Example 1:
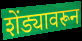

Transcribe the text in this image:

शेंड्यावरून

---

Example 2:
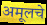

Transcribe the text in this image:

अमूलचे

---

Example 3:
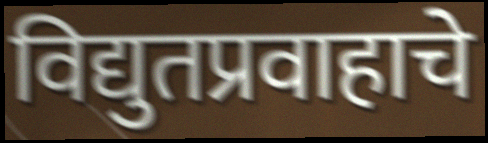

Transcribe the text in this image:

विद्युतप्रवाहाचे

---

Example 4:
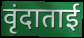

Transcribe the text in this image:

वृंदाताई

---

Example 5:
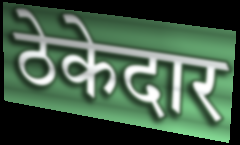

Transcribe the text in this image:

ठेकेदार